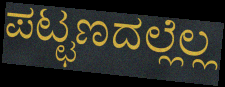
ಪಟ್ಟಣದಲ್ಲೆಲ್ಲ